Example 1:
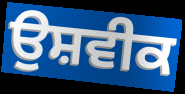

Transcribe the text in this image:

ਉਸ਼ਵੀਕ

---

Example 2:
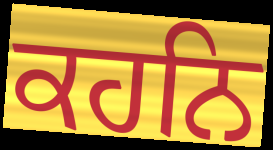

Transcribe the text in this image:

ਕਹਨਿ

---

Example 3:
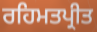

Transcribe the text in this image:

ਰਹਿਮਤਪ੍ਰੀਤ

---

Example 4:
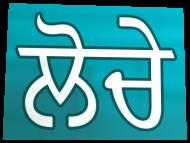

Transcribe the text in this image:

ਲੋਚੇ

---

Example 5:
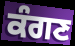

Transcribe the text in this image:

ਕੰਗਣ